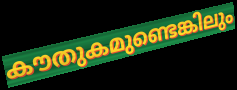
കൗതുകമുണ്ടെങ്കിലും